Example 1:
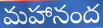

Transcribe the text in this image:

మహానంద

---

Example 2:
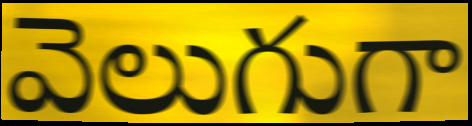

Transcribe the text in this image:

వెలుగుగా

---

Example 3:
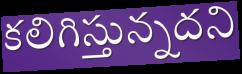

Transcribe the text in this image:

కలిగిస్తున్నదని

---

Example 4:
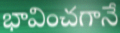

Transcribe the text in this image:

భావించగానే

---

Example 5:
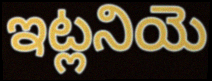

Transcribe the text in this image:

ఇట్లనియె